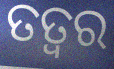
ତତ୍ଵର